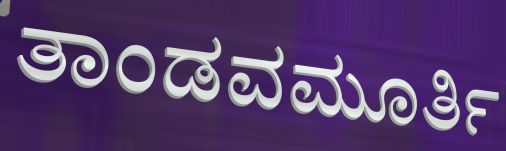
ತಾಂಡವಮೂರ್ತಿ